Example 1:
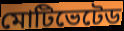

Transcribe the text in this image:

মোটিভেটেড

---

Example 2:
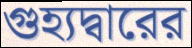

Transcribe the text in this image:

গুহ্যদ্বারের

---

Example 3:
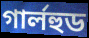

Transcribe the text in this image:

গার্লহুড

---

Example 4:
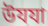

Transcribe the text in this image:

উযযা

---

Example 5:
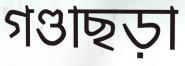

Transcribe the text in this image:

গণ্ডাছড়া